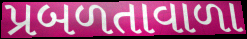
પ્રબળતાવાળા